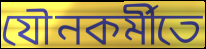
যৌনকর্মীতে